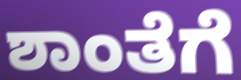
ಶಾಂತೆಗೆ